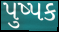
પુષ્પક